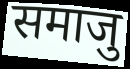
समाजु